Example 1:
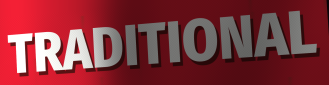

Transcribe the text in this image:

TRADITIONAL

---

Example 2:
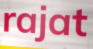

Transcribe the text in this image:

rajat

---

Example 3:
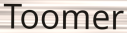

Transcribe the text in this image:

Toomer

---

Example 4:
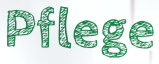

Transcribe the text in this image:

Pflege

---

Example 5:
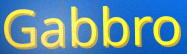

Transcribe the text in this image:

Gabbro